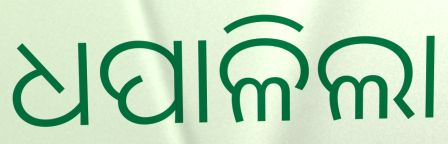
ଧପାଳିଲା